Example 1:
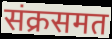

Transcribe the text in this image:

संक्रसमत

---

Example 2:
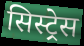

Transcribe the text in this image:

सिस्ट्रेस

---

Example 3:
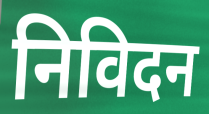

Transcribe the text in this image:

निविदन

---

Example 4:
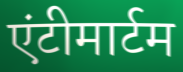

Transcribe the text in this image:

एंटीमार्टम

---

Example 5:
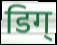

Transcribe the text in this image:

डिग्